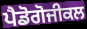
ਪੈਡੋਗੋਜੀਕਲ